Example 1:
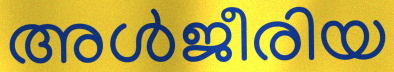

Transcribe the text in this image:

അൾജീരിയ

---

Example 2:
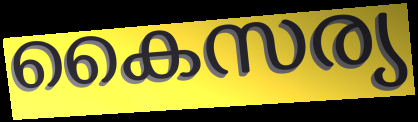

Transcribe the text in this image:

കൈസര്യ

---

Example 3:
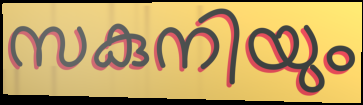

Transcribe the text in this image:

സകുനിയും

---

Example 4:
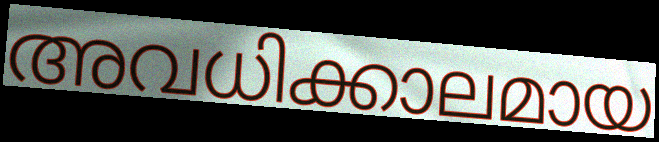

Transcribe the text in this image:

അവധിക്കാലമായ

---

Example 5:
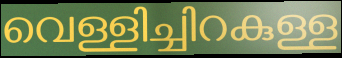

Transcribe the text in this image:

വെള്ളിച്ചിറകുള്ള